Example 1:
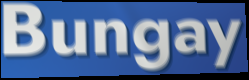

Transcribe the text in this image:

Bungay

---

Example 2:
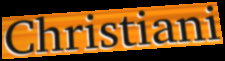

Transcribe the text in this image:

Christiani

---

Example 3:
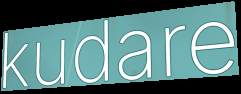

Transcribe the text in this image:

kudare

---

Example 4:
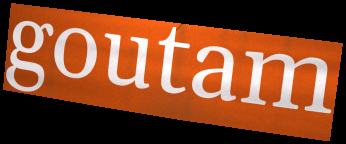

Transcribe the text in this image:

goutam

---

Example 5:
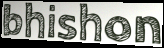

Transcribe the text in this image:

bhishon